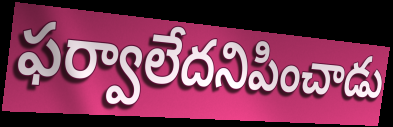
ఫర్వాలేదనిపించాడు